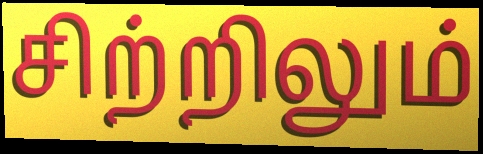
சிற்றிலும்